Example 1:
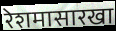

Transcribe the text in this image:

रेशमासारखा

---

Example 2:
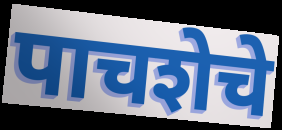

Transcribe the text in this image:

पाचशेचे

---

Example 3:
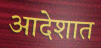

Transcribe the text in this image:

आदेशात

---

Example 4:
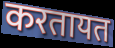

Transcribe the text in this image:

करतायत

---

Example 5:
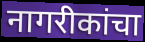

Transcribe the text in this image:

नागरीकांचा